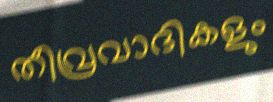
തീവ്രവാദികളും